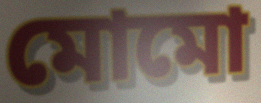
মোমো